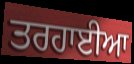
ਤਰਹਾਈਆ